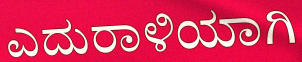
ಎದುರಾಳಿಯಾಗಿ